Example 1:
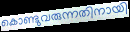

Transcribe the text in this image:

കൊണ്ടുവരുന്നതിനായി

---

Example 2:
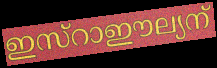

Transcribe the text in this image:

ഇസ്റാഈല്യന്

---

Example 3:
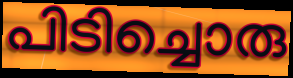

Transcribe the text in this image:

പിടിച്ചൊരു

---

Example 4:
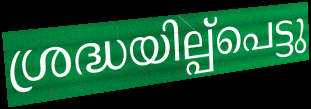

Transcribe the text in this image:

ശ്രദ്ധയില്പ്പെട്ടു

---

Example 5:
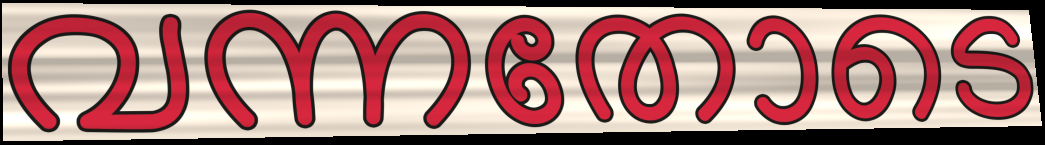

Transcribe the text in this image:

വന്നതോടെ